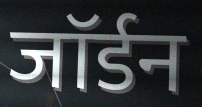
जॉर्डन